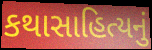
કથાસાહિત્યનું